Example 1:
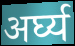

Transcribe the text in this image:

अर्घ्य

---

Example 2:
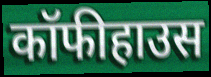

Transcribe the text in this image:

कॉफीहाउस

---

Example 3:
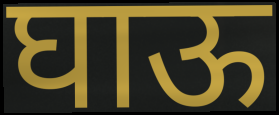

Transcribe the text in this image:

घाऊ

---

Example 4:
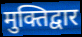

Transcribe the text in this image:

मुक्तिद्वार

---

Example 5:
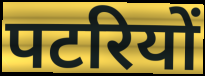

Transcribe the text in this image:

पटरियों